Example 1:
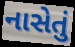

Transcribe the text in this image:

નાસેતું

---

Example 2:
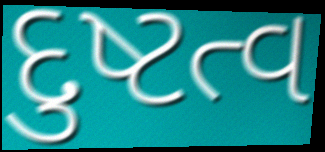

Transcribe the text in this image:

દુષ્ટત્વ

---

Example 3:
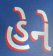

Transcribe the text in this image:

હેને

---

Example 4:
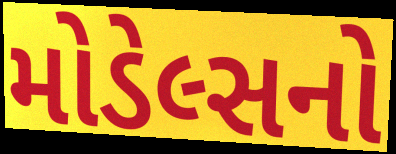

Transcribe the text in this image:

મોડેલ્સનો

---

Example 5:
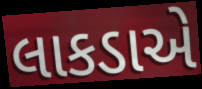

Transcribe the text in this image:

લાકડાએ